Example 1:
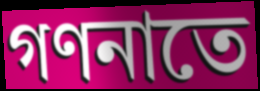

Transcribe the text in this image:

গণনাতে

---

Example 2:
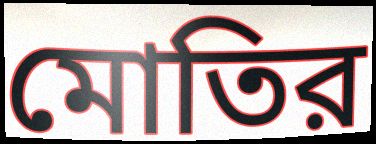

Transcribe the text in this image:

মোতির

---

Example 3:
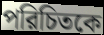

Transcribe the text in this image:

পরিচিতকে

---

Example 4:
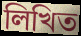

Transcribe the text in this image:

লিখিত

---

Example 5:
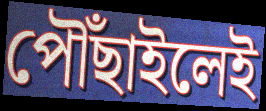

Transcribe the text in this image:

পৌঁছাইলেই